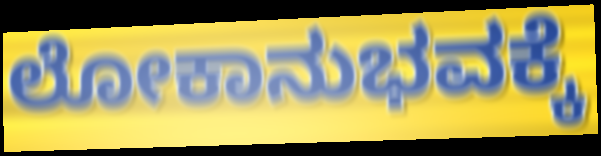
ಲೋಕಾನುಭವಕ್ಕೆ